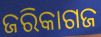
ଜରିକାଗଜ